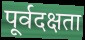
पूर्वदक्षता